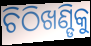
ଚିଠିଖଣ୍ଡିକୁ